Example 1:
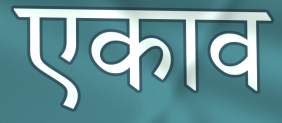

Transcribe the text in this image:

एकाव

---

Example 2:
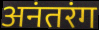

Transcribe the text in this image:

अनंतरंग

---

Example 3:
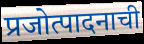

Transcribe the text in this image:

प्रजोत्पादनाची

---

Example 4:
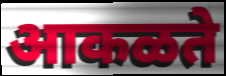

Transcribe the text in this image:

आकळते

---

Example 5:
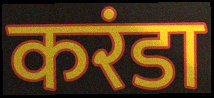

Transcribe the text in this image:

करंडा